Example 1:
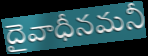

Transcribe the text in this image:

దైవాధీనమనీ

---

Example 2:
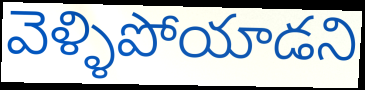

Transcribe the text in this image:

వెళ్ళిపోయాడని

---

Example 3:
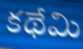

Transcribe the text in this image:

కథేమి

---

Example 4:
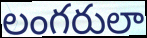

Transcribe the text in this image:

లంగరులా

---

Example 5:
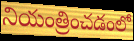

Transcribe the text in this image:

నియంత్రించడంలో